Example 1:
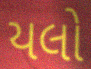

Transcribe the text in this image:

યલો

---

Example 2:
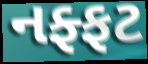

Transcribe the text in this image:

નફ્ફટ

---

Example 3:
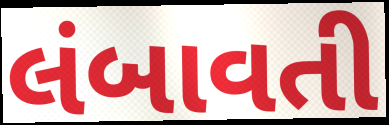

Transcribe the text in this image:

લંબાવતી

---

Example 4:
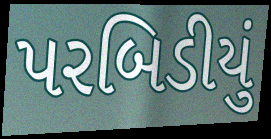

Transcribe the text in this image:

પરબિડીયું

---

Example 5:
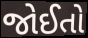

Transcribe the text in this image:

જોઈતો